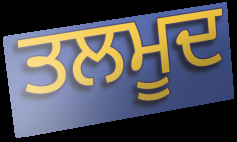
ਤਲਮੂਦ